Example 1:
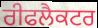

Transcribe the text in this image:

ਰੀਫਲੈਕਟਰ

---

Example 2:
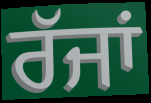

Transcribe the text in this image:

ਰੱਜਾਂ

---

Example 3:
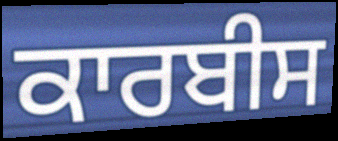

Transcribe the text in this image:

ਕਾਰਬੀਸ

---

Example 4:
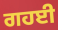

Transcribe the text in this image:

ਗਹਈ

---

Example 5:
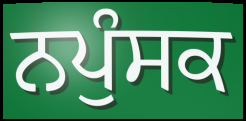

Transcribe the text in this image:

ਨਪੁੰਸਕ